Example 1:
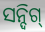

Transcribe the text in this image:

ସନ୍ଦିଗ୍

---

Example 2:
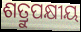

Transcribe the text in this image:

ଶତ୍ରୁପକ୍ଷୀୟ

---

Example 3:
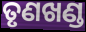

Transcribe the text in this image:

ତୃଣଖଣ୍ଡ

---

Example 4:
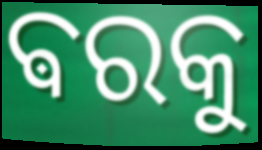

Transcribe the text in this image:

ଵରକୁ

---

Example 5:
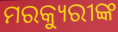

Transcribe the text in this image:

ମରକ୍ୟୁରୀଙ୍କ